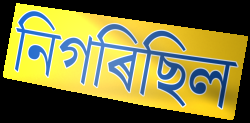
নিগৰিছিল